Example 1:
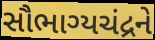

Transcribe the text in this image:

સૌભાગ્યચંદ્રને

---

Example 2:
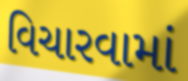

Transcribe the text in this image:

વિચારવામાં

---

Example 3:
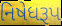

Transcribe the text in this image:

નિષેધરૂપ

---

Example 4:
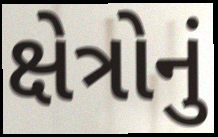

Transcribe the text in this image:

ક્ષેત્રોનું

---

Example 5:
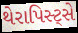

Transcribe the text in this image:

થેરાપિસ્ટ્સે